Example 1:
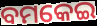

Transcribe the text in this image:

ବମକେଇ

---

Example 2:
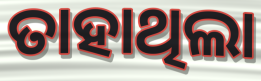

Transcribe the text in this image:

ତାହାଥିଲା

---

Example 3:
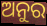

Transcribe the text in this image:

ଅନୁର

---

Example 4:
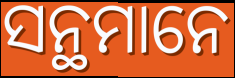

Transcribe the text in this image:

ସନ୍ଥମାନେ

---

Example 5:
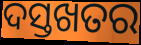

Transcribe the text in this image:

ଦସ୍ତଖତର